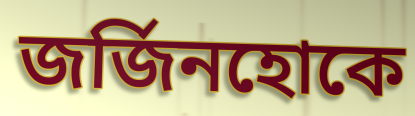
জর্জিনহোকে